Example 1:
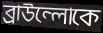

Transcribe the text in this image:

ব্রাউন্লোকে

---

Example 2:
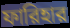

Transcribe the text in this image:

ফারিহার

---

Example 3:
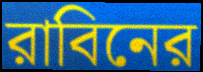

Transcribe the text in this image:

রাবিনের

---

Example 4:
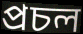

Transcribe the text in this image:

প্রচল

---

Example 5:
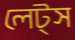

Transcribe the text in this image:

লেট্‌স